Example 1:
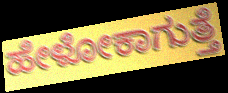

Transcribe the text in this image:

ಹೇಳೋಕಾಗುತ್ತೆ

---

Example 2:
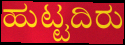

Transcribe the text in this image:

ಹುಟ್ಟದಿರು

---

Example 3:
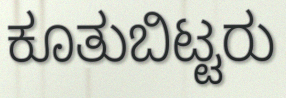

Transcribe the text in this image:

ಕೂತುಬಿಟ್ಟರು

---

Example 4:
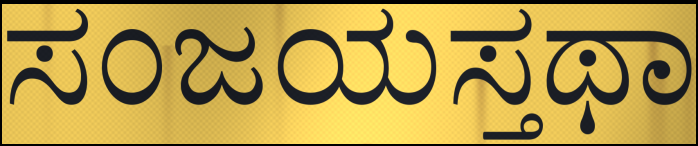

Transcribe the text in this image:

ಸಂಜಯಸ್ತಥಾ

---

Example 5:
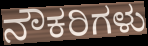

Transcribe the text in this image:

ನೌಕರಿಗಳು